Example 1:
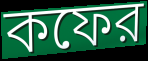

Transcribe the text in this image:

কফের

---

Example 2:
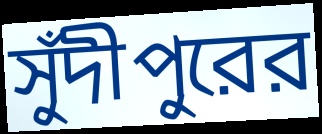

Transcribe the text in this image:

সুঁদীপুরের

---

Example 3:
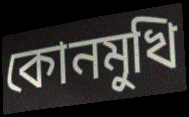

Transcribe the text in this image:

কোনমুখি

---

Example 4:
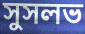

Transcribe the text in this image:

সুসলভ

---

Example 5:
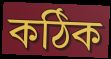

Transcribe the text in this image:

কঠিক